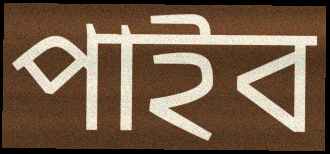
পাইব